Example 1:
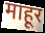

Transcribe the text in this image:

माहूर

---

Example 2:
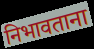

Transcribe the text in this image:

निभावताना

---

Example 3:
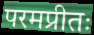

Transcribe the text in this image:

परमप्रीतः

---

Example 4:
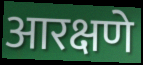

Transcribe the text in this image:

आरक्षणे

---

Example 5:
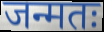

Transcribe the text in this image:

जन्मतः